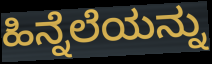
ಹಿನ್ನೆಲೆಯನ್ನು